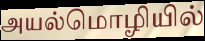
அயல்மொழியில்